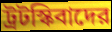
ট্রটস্কিবাদের